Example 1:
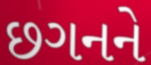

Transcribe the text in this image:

છગનને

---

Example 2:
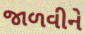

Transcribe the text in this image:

જાળવીને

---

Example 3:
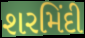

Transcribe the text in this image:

શરમિંદી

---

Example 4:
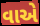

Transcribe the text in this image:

વાએ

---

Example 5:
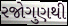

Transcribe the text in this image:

રજોગુણથી